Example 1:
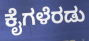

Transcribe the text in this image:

ಕೈಗಳೆರಡು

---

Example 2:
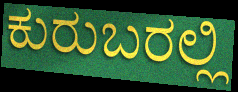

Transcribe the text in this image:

ಕುರುಬರಲ್ಲಿ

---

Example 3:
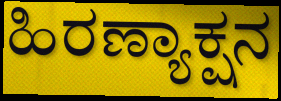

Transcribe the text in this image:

ಹಿರಣ್ಯಾಕ್ಷನ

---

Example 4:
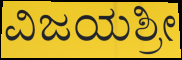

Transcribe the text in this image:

ವಿಜಯಶ್ರೀ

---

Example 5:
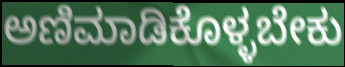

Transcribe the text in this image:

ಅಣಿಮಾಡಿಕೊಳ್ಳಬೇಕು